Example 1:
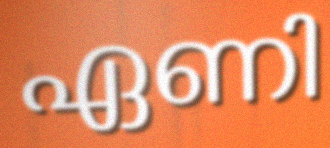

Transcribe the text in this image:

ഏണി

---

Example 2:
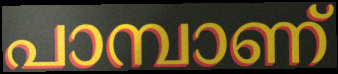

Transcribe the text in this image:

പാമ്പാണ്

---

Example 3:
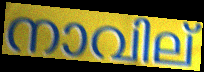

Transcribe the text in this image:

നാവില്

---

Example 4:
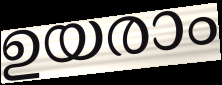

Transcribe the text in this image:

ഉയരാം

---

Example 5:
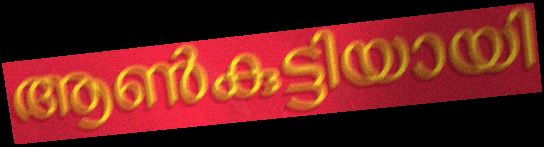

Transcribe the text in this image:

ആൺകുട്ടിയായി